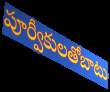
పూర్వీకులతోబాటు